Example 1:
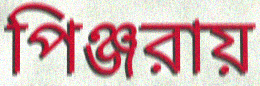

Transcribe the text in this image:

পিঞ্জরায়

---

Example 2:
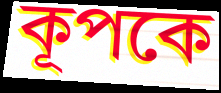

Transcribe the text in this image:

কূপকে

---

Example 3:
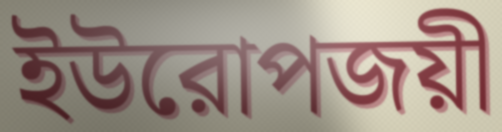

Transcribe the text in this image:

ইউরোপজয়ী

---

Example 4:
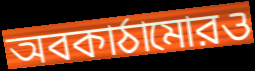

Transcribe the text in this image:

অবকাঠামোরও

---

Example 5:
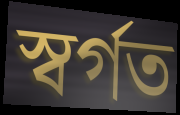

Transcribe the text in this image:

স্বর্গত